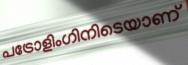
പട്രോളിംഗിനിടെയാണ്